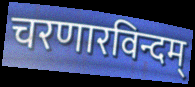
चरणारविन्दम्